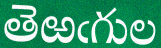
తెఱఁగుల